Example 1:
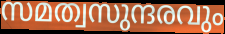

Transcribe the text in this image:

സമത്വസുന്ദരവും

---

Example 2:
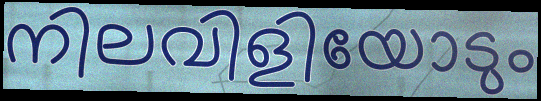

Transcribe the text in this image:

നിലവിളിയോടും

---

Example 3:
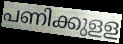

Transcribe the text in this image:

പണിക്കുളള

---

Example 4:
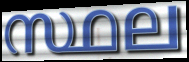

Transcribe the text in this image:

സ്ഥല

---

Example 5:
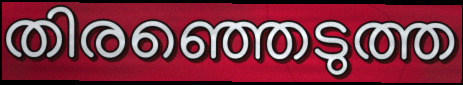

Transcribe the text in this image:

തിരഞ്ഞെടുത്ത